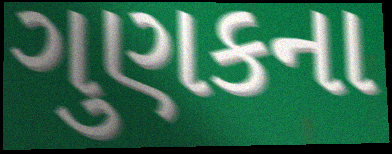
ગુણકના